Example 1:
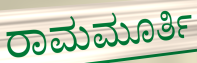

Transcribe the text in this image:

ರಾಮಮೂರ್ತಿ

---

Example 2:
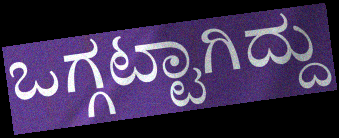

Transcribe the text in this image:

ಒಗ್ಗಟ್ಟಾಗಿದ್ದು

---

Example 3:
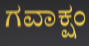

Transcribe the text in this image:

ಗವಾಕ್ಷಂ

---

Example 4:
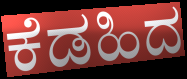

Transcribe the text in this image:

ಕೆಡಹಿದ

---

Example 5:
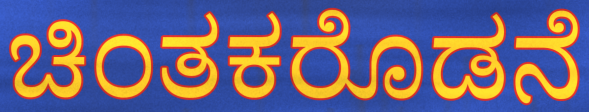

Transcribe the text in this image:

ಚಿಂತಕರೊಡನೆ